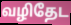
வழிதேட